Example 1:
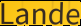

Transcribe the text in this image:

Lande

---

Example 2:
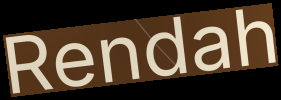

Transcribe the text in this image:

Rendah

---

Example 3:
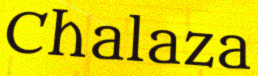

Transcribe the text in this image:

Chalaza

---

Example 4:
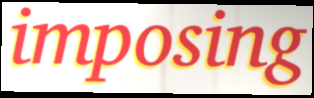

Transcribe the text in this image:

imposing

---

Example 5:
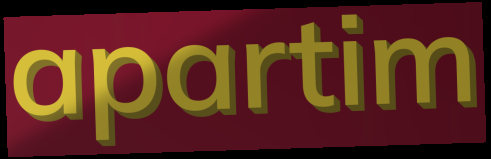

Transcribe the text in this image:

apartim